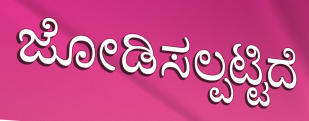
ಜೋಡಿಸಲ್ಪಟ್ಟಿದೆ